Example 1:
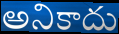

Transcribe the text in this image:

అనికాదు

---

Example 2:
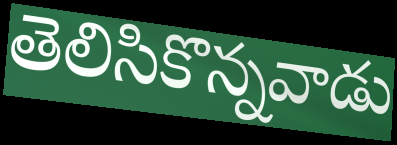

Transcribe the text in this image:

తెలిసికొన్నవాడు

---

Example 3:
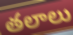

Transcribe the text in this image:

తలాలు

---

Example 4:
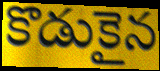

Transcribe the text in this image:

కొడుకైన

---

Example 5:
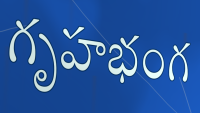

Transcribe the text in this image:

గృహభంగ